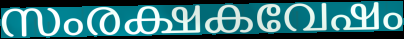
സംരക്ഷകവേഷം